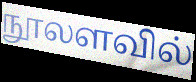
நூலளவில்